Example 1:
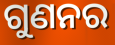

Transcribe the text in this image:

ଗୁଣନର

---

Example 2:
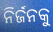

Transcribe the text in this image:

ନିର୍ଜନକୁ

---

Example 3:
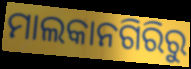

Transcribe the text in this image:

ମାଲକାନଗିରିରୁ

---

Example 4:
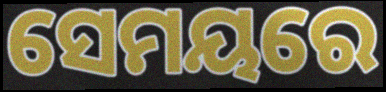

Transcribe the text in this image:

ସେମୟରେ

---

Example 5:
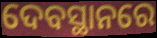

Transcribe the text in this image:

ଦେବସ୍ଥାନରେ